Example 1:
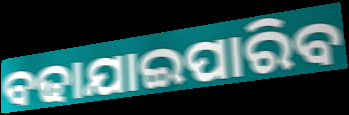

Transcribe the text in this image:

ବଢାଯାଇପାରିବ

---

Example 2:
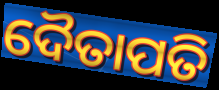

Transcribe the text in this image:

ଦୈତାପତି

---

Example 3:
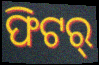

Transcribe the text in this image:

ଫିଟର୍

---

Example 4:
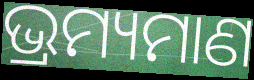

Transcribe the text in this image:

ଭ୍ରମ୍ୟମାଣ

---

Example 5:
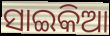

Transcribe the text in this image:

ସାଇକିଆ